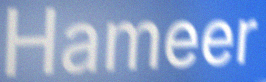
Hameer